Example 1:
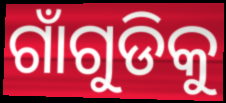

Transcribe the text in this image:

ଗାଁଗୁଡିକୁ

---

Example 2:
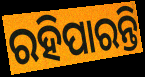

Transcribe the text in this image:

ରହିପାରନ୍ତି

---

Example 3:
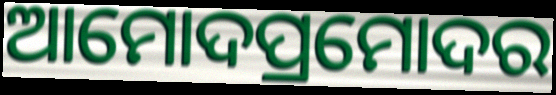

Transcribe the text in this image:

ଆମୋଦପ୍ରମୋଦର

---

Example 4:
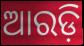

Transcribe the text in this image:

ଆରଡ଼ି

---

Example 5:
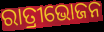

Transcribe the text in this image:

ରାତ୍ରୀଭୋଜନ